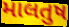
માલતુષ